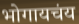
भोगायचंय